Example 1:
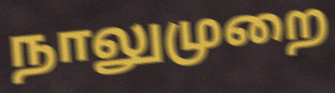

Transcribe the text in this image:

நாலுமுறை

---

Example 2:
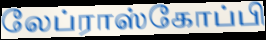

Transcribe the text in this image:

லேப்ராஸ்கோப்பி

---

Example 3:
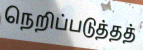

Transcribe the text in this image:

நெறிப்படுத்தத்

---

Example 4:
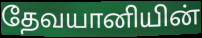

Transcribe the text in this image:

தேவயானியின்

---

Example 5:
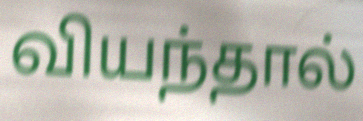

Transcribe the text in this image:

வியந்தால்